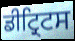
ਡੀਟ੍ਰਿਟਸ